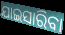
ଯାଇସାରିବା